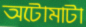
অটোমাটা